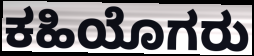
ಕಹಿಯೊಗರು